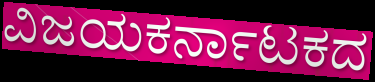
ವಿಜಯಕರ್ನಾಟಕದ